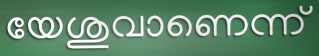
യേശുവാണെന്ന്